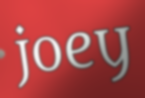
joey